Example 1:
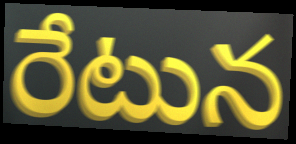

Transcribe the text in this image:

రేటున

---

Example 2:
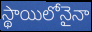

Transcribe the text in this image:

స్థాయిలోనైనా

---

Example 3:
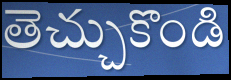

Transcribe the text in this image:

తెచ్చుకొండి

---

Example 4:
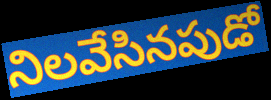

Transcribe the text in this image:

నిలవేసినపుడో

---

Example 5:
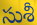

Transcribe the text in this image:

సుశీ